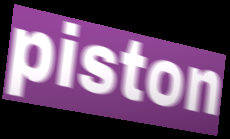
piston